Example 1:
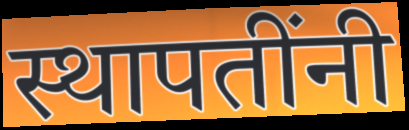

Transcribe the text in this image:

स्थापतींनी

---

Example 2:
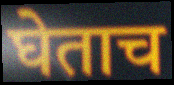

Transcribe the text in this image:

घेताच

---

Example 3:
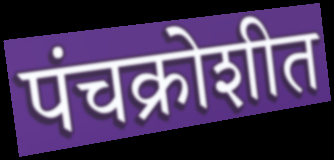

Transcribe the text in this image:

पंचक्रोशीत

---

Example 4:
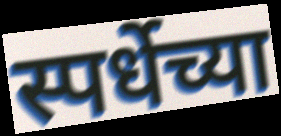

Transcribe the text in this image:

स्पर्धेच्या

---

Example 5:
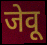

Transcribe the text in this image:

जेवू